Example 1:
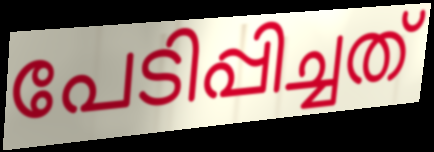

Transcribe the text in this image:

പേടിപ്പിച്ചത്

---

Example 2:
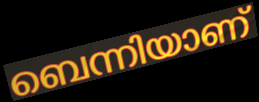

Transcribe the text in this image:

ബെന്നിയാണ്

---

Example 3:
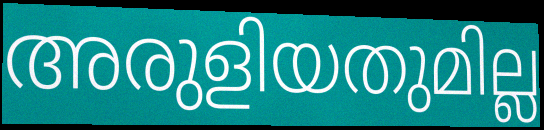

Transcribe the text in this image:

അരുളിയതുമില്ല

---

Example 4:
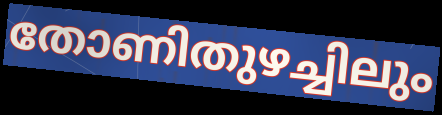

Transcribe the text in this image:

തോണിതുഴച്ചിലും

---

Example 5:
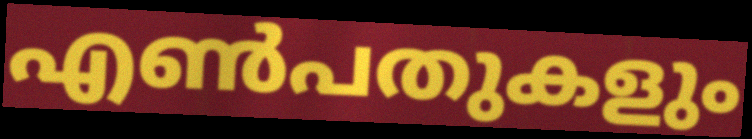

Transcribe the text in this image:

എൺപതുകളും